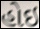
હોઇ